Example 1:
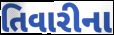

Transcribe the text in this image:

તિવારીના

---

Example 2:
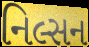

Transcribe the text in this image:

નિલ્સન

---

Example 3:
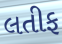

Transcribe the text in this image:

લતીફ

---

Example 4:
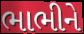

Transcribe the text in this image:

ભાભીને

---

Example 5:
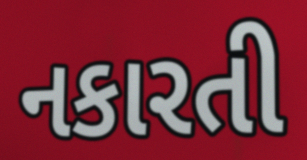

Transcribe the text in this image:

નકારતી